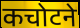
कचोटने